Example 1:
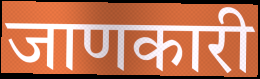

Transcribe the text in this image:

जाणकारी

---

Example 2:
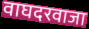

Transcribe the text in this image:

वाघदरवाजा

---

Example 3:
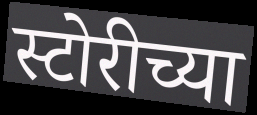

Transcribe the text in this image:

स्टोरीच्या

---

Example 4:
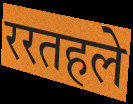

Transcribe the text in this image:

ररतहले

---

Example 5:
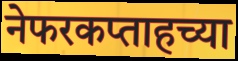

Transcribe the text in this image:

नेफरकप्ताहच्या